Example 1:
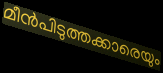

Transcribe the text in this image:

മീൻപിടുത്തക്കാരെയും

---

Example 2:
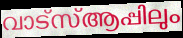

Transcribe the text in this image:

വാട്സ്ആപ്പിലും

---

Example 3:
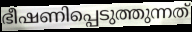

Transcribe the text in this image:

ഭീഷണിപ്പെടുത്തുന്നത്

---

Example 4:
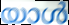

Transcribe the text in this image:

യാൾ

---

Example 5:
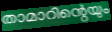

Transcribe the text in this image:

താമാറിന്റെയും